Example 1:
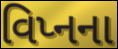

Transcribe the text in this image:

વિપ્નના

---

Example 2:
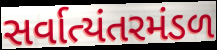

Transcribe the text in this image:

સર્વાત્યંતરમંડળ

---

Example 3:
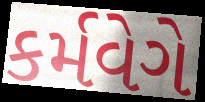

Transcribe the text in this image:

કર્મવેગે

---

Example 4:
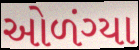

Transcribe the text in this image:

ઓળંગ્યા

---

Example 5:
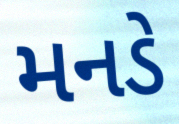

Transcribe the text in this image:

મનડે